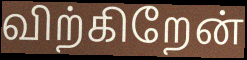
விற்கிறேன்